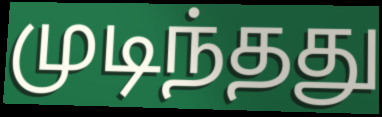
முடிந்தது